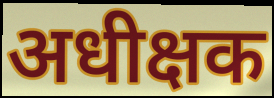
अधीक्षक